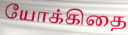
யோக்கிதை